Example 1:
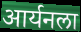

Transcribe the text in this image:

आर्यनला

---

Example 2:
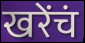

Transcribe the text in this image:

खरेंचं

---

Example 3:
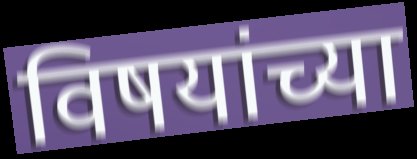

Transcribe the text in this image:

विषयांच्या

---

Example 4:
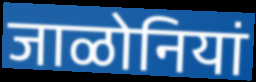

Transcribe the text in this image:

जाळोनियां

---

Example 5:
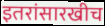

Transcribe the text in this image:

इतरांसारखीच